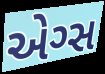
એગ્સ